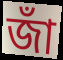
জাঁ